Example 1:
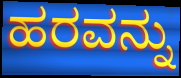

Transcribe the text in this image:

ಹರವನ್ನು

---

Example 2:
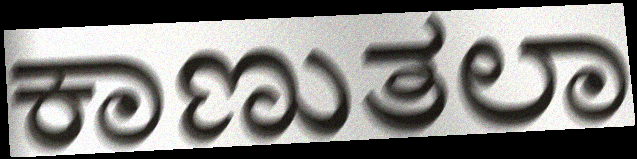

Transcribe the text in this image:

ಕಾಣುತಲಾ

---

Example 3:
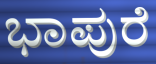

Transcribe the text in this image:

ಭಾಪುರೆ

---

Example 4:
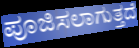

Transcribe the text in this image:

ಪೂಜಿಸಲಾಗುತ್ತದೆ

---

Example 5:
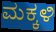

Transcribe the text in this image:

ಮಕ್ಕಳಿ